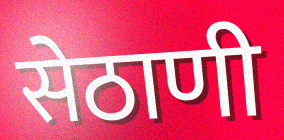
सेठाणी